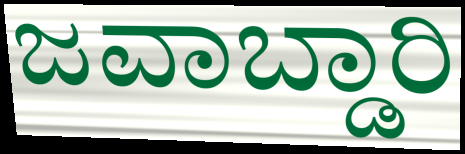
ಜವಾಬ್ಡಾರಿ